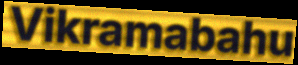
Vikramabahu